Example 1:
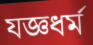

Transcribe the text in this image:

যজ্ঞধর্ম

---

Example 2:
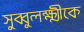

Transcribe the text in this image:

সুব্বুলক্ষ্মীকে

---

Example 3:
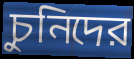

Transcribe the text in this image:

চুনিদের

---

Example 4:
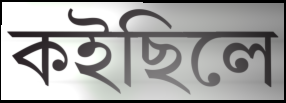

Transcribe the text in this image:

কইছিলে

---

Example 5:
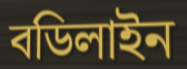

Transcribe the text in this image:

বডিলাইন